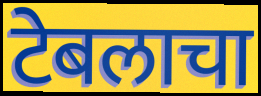
टेबलाचा